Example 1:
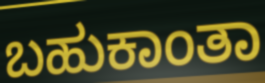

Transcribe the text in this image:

ಬಹುಕಾಂತಾ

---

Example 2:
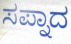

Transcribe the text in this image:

ಸಪ್ನಾದ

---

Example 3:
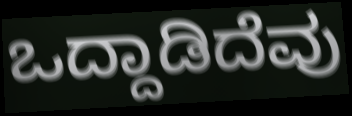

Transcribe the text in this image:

ಒದ್ದಾಡಿದೆವು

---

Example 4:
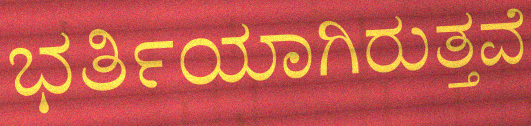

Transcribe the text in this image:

ಭರ್ತಿಯಾಗಿರುತ್ತವೆ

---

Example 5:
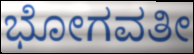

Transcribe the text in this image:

ಭೋಗವತೀ